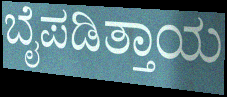
ಬೈಪಡಿತ್ತಾಯ